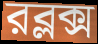
রব্লক্স